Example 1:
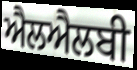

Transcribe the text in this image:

ਐਲਐਲਬੀ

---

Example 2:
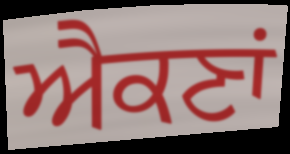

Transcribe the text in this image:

ਐਕਣਾਂ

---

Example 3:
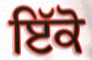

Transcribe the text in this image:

ਇੱਕੋ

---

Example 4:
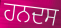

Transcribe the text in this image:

ਹਨਦਸ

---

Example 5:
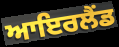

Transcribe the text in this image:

ਆਇਰਲੈਂਡ